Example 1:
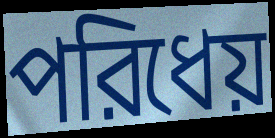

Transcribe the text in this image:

পরিধেয়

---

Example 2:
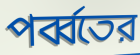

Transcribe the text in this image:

পর্ব্বতের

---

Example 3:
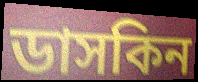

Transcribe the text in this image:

ডাসকিন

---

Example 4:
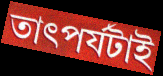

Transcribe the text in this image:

তাৎপর্যটাই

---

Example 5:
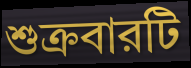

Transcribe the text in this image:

শুক্রবারটি